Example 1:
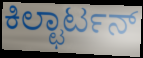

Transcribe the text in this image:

ಕಿಲ್ಟಾರ್ಟನ್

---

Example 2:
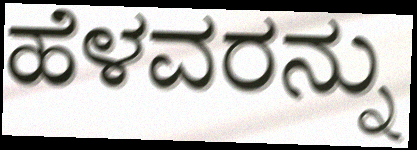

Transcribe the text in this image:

ಹೆಳವರನ್ನು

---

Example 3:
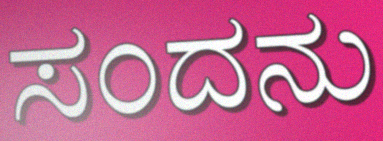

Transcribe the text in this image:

ಸಂದನು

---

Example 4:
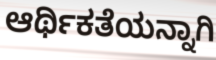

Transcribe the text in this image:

ಆರ್ಥಿಕತೆಯನ್ನಾಗಿ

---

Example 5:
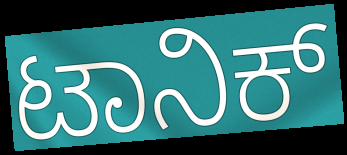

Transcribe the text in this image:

ಟಾನಿಕ್